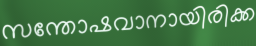
സന്തോഷവാനായിരിക്ക